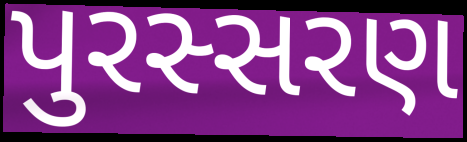
પુરસ્સરણ